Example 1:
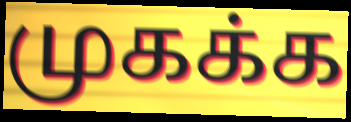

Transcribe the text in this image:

முகக்க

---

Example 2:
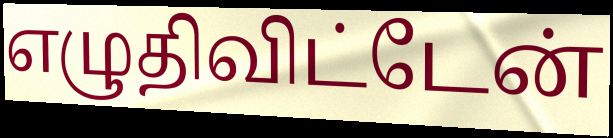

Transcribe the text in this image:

எழுதிவிட்டேன்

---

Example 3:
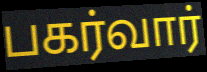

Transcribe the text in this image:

பகர்வார்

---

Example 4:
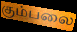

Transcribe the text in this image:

கும்பலை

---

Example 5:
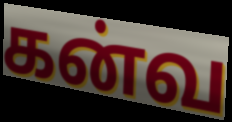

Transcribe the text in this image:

கன்வ